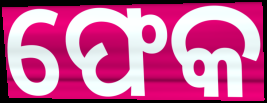
ଫେକ